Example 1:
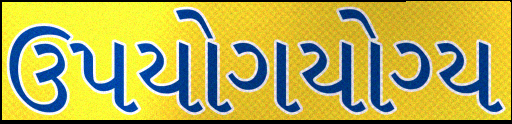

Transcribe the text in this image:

ઉપયોગયોગ્ય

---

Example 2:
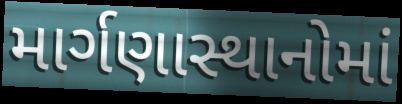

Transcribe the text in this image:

માર્ગણાસ્થાનોમાં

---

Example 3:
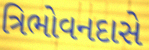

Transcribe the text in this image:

ત્રિભોવનદાસે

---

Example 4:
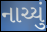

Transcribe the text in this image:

નાચ્યું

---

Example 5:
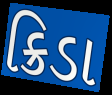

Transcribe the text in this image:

ક્રિડા